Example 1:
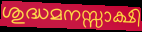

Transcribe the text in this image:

ശുദ്ധമനസ്സാക്ഷി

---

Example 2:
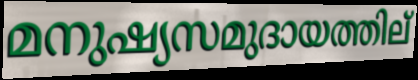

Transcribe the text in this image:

മനുഷ്യസമുദായത്തില്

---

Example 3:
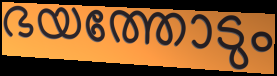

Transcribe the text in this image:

ഭയത്തോടും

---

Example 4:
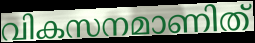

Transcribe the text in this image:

വികസനമാണിത്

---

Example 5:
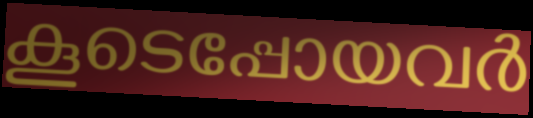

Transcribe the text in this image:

കൂടെപ്പോയവർ